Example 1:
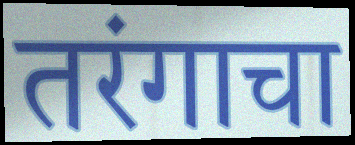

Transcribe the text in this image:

तरंगाचा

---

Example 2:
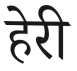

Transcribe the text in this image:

हेरी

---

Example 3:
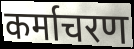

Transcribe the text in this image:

कर्माचरण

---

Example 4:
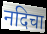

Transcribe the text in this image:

नदिचा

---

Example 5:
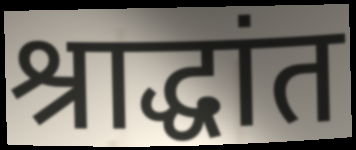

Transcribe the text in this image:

श्राद्धांत